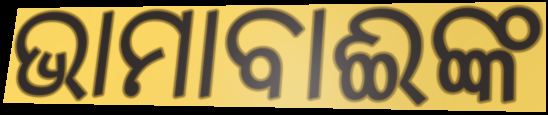
ଭାମାବାଈଙ୍କ